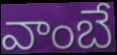
వాంబే